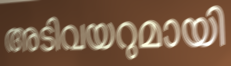
അടിവയറുമായി